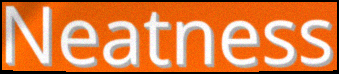
Neatness